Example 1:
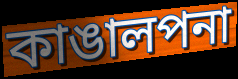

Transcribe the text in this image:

কাঙালপনা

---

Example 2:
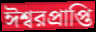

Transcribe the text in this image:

ঈশ্বরপ্রাপ্তি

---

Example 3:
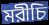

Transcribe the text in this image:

মরীচি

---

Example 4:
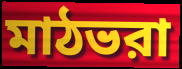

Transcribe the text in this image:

মাঠভরা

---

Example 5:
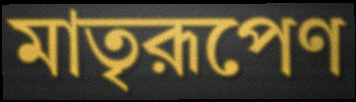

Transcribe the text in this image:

মাতৃরূপেণ